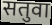
सतुवा